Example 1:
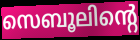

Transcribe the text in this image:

സെബൂലിന്റെ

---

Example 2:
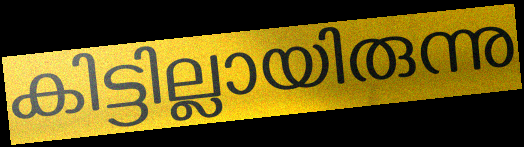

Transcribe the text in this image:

കിട്ടില്ലായിരുന്നു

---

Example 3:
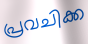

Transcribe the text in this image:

പ്രവചിക്ക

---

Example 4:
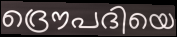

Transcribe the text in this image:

ദ്രൌപദിയെ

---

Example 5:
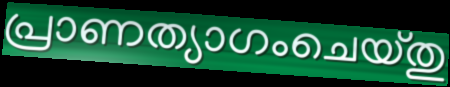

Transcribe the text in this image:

പ്രാണത്യാഗംചെയ്തു